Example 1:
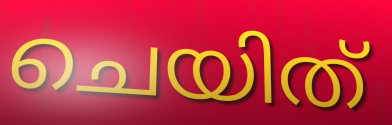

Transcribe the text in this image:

ചെയിത്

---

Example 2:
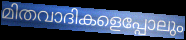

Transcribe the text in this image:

മിതവാദികളെപ്പോലും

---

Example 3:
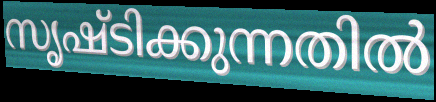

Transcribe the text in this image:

സൃഷ്ടിക്കുന്നതിൽ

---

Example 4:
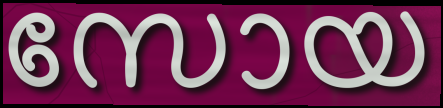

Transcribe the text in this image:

സോയ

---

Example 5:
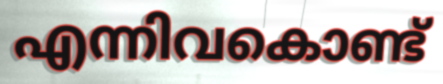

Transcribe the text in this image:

എന്നിവകൊണ്ട്